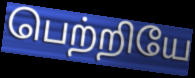
பெற்றியே